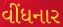
વીંધનાર